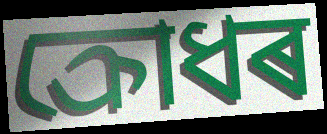
ক্ৰোধৰ